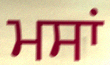
ਮਸਾਂ